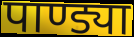
पाण्ड्या